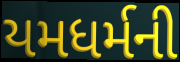
યમધર્મની